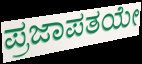
ಪ್ರಜಾಪತಯೇ